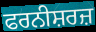
ਫਰਨੀਸ਼ਰਜ਼